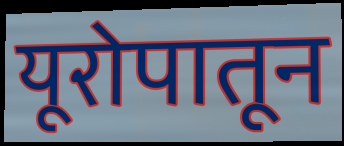
यूरोपातून